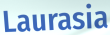
Laurasia